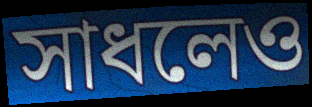
সাধলেও